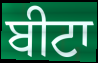
ਬੀਟਾ